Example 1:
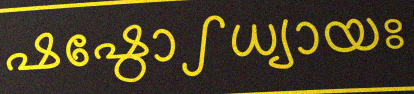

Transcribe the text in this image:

ഷഷ്ഠോഽധ്യായഃ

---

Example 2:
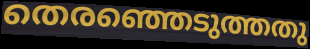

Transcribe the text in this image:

തെരഞ്ഞെടുത്തതു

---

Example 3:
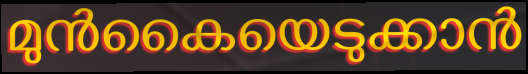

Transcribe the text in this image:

മുൻകൈയെടുക്കാൻ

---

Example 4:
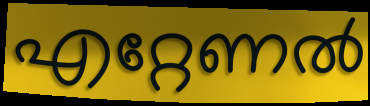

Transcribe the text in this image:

എറ്റേണൽ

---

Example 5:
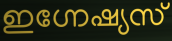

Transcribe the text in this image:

ഇഗ്നേഷ്യസ്